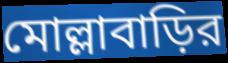
মোল্লাবাড়ির